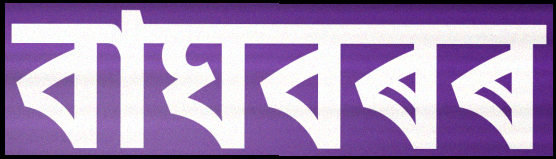
বাঘবৰৰ